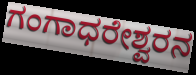
ಗಂಗಾಧರೇಶ್ವರನ